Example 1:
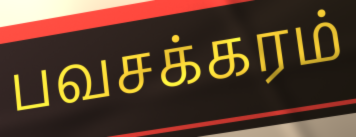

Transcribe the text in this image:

பவசக்கரம்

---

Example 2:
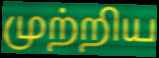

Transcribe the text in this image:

முற்றிய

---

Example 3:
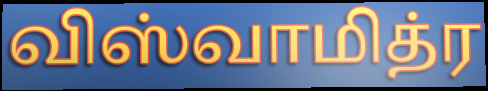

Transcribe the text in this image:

விஸ்வாமித்ர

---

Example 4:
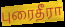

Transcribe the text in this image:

புரைதீரா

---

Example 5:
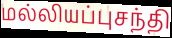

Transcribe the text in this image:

மல்லியப்புசந்தி